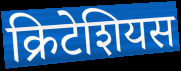
क्रिटेशियस